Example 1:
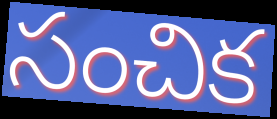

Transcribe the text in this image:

సంచిక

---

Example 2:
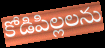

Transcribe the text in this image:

కోడిపిల్లలను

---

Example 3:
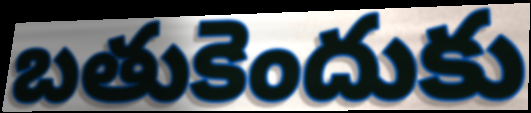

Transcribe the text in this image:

బతుకెందుకు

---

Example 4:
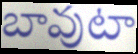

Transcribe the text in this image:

బావుటా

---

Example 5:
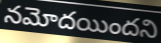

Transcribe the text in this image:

నమోదయిందని